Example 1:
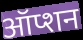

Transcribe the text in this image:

ऑप्‍शन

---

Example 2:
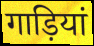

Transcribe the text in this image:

गाड़ियां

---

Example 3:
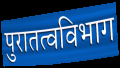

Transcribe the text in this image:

पुरातत्वविभाग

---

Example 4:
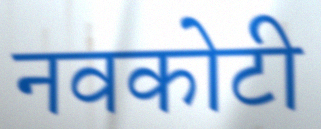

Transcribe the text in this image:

नवकोटी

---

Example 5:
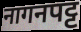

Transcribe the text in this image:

नागनपट्ट